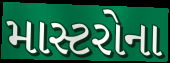
માસ્ટરોના